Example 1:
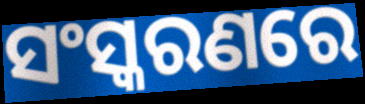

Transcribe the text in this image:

ସଂସ୍କରଣରେ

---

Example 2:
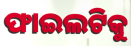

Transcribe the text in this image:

ଫାଇଲଟିକୁ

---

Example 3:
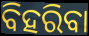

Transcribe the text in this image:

ବିହରିବା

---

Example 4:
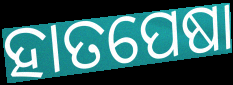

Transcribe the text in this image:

ହାତପେଷା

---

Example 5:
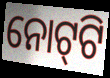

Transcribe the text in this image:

ନୋଟ୍‌ଟି